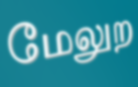
மேலுற